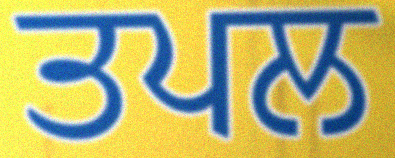
ਤਪਲ